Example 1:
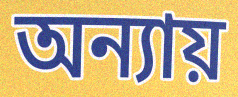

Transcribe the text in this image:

অন্যায়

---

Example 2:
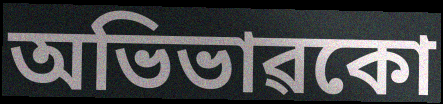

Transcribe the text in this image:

অভিভাৱকো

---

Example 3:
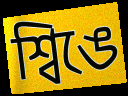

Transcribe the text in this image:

শ্বিঙে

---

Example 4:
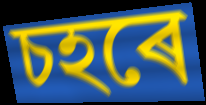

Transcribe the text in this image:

চহৰে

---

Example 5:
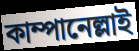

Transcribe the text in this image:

কাম্পানেল্লাই